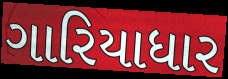
ગારિયાધાર